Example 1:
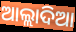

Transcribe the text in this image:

ଆଲ୍ଲାଦିଆ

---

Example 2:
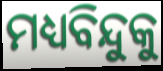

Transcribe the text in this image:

ମଧ୍ୟବିନ୍ଦୁକୁ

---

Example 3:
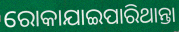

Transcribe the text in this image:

ରୋକାଯାଇପାରିଥାନ୍ତା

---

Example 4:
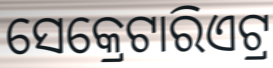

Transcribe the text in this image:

ସେକ୍ରେଟାରିଏଟ୍ର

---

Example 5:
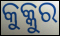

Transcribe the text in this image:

କୁକ୍କୁର